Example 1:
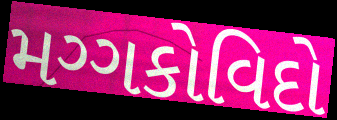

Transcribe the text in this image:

મગ્ગકોવિદો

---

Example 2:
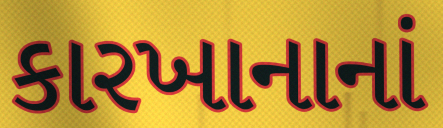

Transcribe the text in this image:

કારખાનાનાં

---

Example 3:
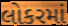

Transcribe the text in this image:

લોકરમાં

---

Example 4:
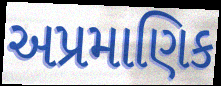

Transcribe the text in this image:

અપ્રમાણિક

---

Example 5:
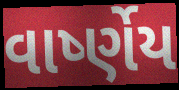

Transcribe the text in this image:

વાર્ષ્ણેય